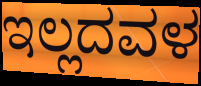
ಇಲ್ಲದವಳ